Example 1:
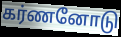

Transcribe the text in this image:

கர்ணனோடு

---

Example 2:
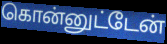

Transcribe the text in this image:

கொன்னுட்டேன்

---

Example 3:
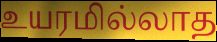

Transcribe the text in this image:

உயரமில்லாத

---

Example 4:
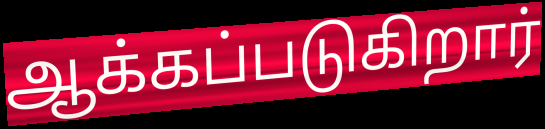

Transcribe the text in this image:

ஆக்கப்படுகிறார்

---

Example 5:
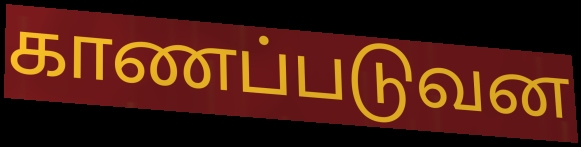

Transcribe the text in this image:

காணப்படுவன